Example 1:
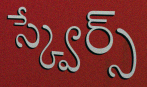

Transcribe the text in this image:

స్క్వేర్స్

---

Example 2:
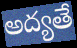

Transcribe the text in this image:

అద్యతే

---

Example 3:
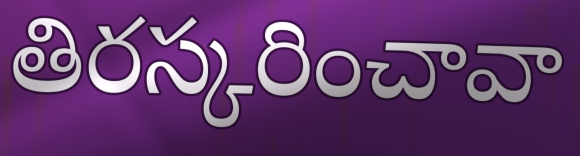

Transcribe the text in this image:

తిరస్కరించావా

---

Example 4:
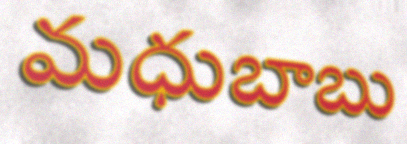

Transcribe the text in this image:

మధుబాబు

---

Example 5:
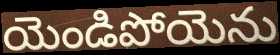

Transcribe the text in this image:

యెండిపోయెను